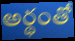
అర్థంతో